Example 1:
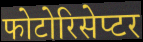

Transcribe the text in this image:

फोटोरिसेप्टर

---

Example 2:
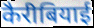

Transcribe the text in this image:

कैरीबियाई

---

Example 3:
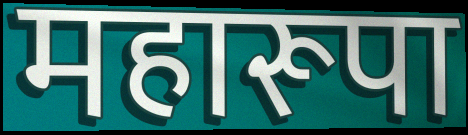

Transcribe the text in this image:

महारूपा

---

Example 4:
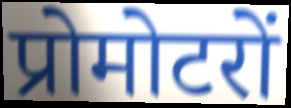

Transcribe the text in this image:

प्रोमोटरों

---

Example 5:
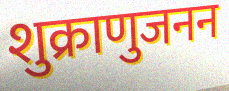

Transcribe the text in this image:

शुक्राणुजनन